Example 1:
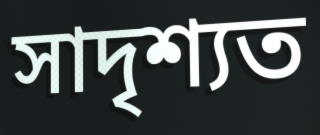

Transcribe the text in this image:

সাদৃশ্যত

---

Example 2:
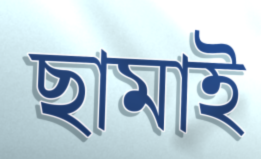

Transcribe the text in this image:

ছামাই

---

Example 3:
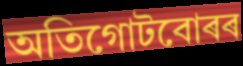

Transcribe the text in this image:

অতিগোটবোৰৰ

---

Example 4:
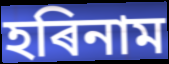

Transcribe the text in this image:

হৰিনাম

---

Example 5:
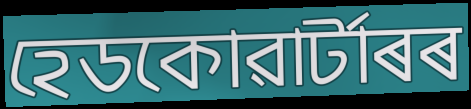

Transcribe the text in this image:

হেডকোৱাৰ্টাৰৰ